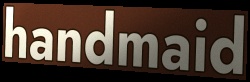
handmaid